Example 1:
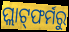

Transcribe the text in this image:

ପ୍ଲାଟ୍‌ଫର୍ମରୁ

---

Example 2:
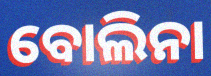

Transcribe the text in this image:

ବୋଲିନା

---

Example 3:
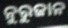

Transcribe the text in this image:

ନୁରୁଜାନ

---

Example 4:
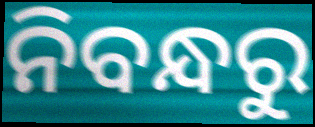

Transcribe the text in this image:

ନିବନ୍ଧରୁ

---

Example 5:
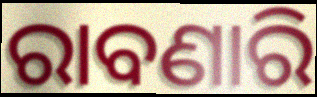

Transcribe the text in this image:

ରାବଣାରି